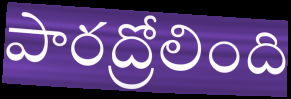
పారద్రోలింది